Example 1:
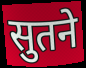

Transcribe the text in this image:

सुतने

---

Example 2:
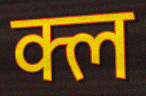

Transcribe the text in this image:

क्ल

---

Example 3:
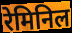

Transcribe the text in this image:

रेमिनिल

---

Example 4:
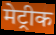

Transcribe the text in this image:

मेट्रीक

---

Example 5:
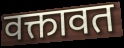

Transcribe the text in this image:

वक्तावत